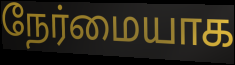
நேர்மையாக